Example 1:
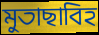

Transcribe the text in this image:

মুতাছাবিহ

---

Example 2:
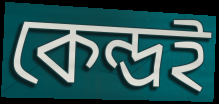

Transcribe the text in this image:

কেন্দ্ৰই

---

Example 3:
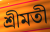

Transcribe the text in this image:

শ্ৰীমতী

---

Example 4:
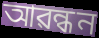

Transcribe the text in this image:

আৱন্ধন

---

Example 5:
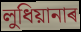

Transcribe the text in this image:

লুধিয়ানাৰ